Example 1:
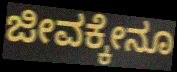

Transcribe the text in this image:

ಜೀವಕ್ಕೇನೂ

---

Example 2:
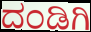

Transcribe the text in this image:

ದಂಡಿಗಿ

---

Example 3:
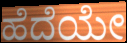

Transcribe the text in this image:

ಹೆದೆಯೇ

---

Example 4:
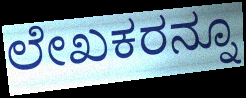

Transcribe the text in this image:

ಲೇಖಕರನ್ನೂ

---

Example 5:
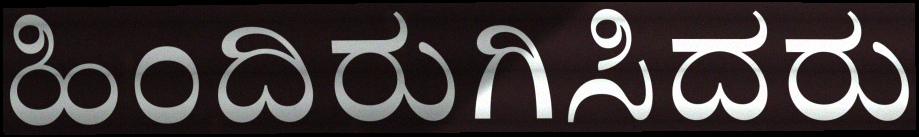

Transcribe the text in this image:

ಹಿಂದಿರುಗಿಸಿದರು